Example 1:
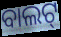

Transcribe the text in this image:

ବାଲଟ୍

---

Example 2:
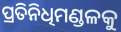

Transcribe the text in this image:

ପ୍ରତିନିଧିମଣ୍ଡଳକୁ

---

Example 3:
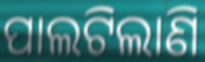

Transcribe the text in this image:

ପାଲଟିଲାଣି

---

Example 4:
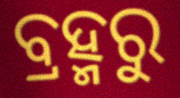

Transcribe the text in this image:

ବ୍ରହ୍ମରୁ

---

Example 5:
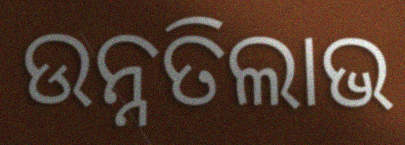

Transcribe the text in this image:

ଉନ୍ନତିଲାଭ